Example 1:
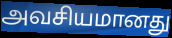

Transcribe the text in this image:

அவசியமானது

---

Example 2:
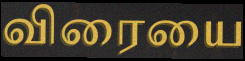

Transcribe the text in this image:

விரையை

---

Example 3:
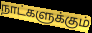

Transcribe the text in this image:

நாட்களுக்கும்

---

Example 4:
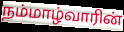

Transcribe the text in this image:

நம்மாழ்வாரின்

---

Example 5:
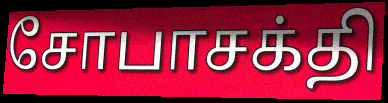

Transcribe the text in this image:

சோபாசக்தி